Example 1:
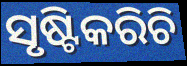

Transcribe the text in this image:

ସୃଷ୍ଟିକରିଚି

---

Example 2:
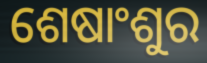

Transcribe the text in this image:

ଶେଷାଂଶୁର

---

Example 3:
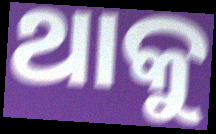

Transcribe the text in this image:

ଥାକୁ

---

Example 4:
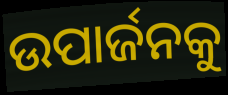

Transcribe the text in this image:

ଉପାର୍ଜନକୁ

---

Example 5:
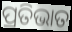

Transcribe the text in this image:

ପ୍ରତିଭାତ